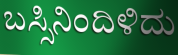
ಬಸ್ಸಿನಿಂದಿಳಿದು